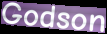
Godson